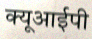
क्यूआईपी